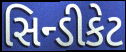
સિન્ડીકેટ